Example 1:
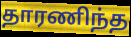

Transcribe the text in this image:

தாரணிந்த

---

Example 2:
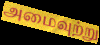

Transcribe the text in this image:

அமைவுற்று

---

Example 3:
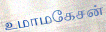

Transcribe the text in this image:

உமாமகேசன்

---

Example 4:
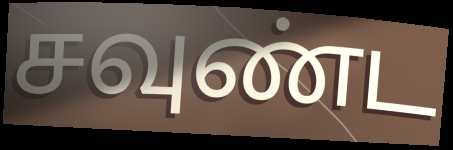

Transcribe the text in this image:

சவுண்ட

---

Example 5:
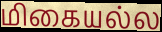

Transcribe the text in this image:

மிகையல்ல